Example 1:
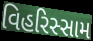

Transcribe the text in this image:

વિહરિસ્સામ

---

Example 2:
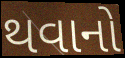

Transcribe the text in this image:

થવાનો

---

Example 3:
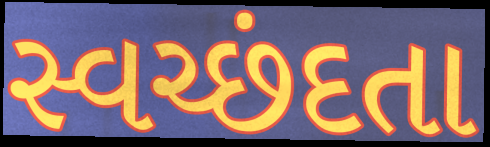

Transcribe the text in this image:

સ્વચ્છંદતા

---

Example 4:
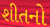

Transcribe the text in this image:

શીતનો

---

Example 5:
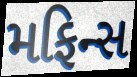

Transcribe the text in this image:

મફિન્સ